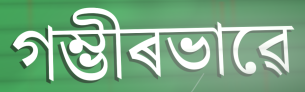
গম্ভীৰভাৱে